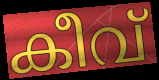
കീവ്